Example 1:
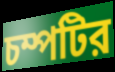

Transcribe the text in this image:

চম্পটির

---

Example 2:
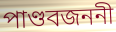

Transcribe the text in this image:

পাণ্ডবজননী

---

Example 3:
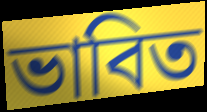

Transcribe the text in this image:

ভাবিত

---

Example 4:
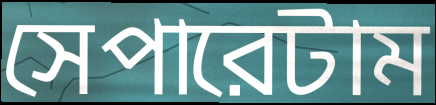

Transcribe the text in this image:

সেপারেটাম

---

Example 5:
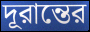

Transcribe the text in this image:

দূরান্তের